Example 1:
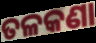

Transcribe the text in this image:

ତଳକଣା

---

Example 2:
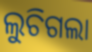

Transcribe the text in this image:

ଲୁଚିଗଲା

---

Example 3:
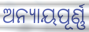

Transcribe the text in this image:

ଅନ୍ୟାୟପୂର୍ଣ୍ଣ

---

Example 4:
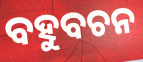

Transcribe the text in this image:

ବହୁବଚନ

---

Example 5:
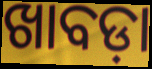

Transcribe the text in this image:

ଖାବଡ଼ା